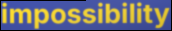
impossibility